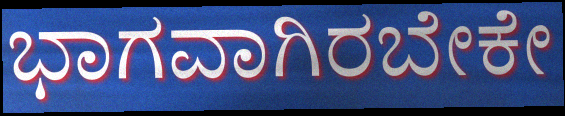
ಭಾಗವಾಗಿರಬೇಕೇ